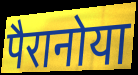
पैरानोया